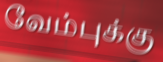
வேம்புக்கு